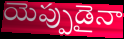
యెప్పుడైనా